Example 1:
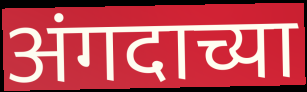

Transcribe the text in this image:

अंगदाच्या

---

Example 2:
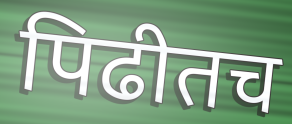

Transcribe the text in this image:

पिढीतच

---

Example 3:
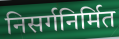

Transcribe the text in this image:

निसर्गनिर्मित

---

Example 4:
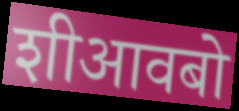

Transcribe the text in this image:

शीआवबो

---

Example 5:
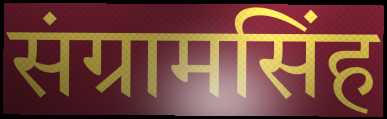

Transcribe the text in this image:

संग्रामसिंह